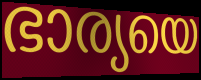
ഭാര്യയെ